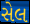
સેલ